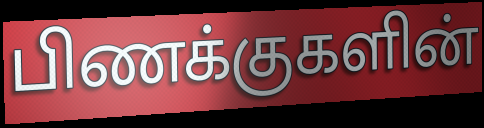
பிணக்குகளின்